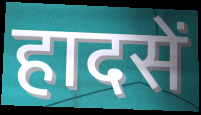
हादसें